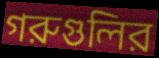
গরুগুলির